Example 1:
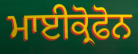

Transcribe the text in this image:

ਮਾਈਕ੍ਰੋਫੋਨ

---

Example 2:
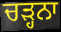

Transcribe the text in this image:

ਚੜ੍ਹਨਾ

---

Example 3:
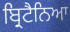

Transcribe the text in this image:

ਬ੍ਰਿਟੈਨਿਆ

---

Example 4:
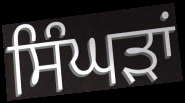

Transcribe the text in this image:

ਸਿੰਘੜਾਂ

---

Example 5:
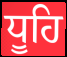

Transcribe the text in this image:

ਧੂਹਿ